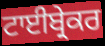
ਟਾਈਬ੍ਰੇਕਰ